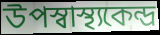
উপস্বাস্থ্যকেন্দ্র